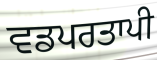
ਵਡਪਰਤਾਪੀ